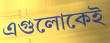
এগুলোকেই